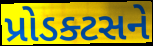
પ્રોડક્ટસને